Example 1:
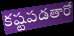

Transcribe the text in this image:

కష్టపడతారో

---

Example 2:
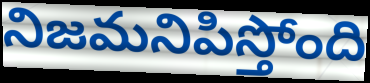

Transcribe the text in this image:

నిజమనిపిస్తోంది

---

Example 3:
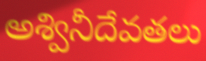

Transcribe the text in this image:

అశ్వినీదేవతలు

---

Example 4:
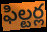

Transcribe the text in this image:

ఫిల్టర్ల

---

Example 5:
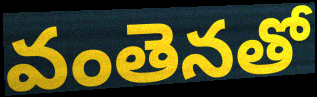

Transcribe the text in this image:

వంతెనతో